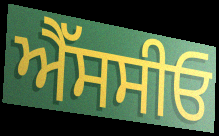
ਐੱਸਸੀਓ